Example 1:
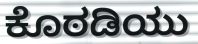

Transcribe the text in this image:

ಕೊಠಡಿಯು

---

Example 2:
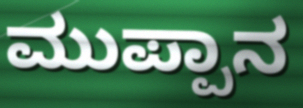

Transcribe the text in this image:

ಮುಪ್ಪಾನ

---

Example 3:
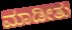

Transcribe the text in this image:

ಮಾಡೀತು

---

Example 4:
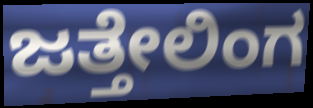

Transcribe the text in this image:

ಜತ್ತೇಲಿಂಗ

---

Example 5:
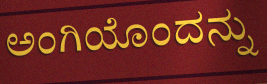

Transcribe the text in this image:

ಅಂಗಿಯೊಂದನ್ನು